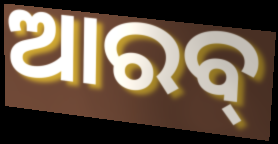
ଆରବ୍